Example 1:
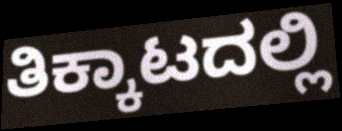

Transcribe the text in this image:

ತಿಕ್ಕಾಟದಲ್ಲಿ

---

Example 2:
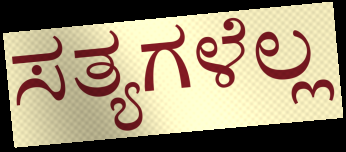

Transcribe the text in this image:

ಸತ್ಯಗಳೆಲ್ಲ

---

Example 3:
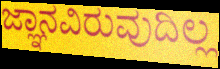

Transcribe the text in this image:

ಜ್ಞಾನವಿರುವುದಿಲ್ಲ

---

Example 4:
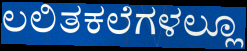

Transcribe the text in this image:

ಲಲಿತಕಲೆಗಳಲ್ಲೂ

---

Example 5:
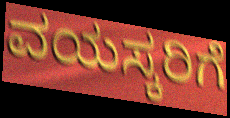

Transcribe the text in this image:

ವಯಸ್ಕರಿಗೆ